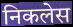
निकलेस